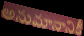
అనుమానానికీ